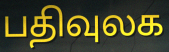
பதிவுலக